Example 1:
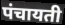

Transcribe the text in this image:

पंचायती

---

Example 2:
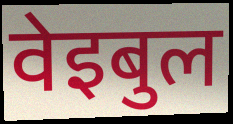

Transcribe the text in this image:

वेइबुल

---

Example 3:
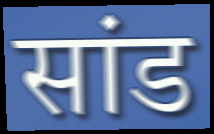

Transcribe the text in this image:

सांड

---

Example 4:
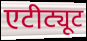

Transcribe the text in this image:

एटीट्यूट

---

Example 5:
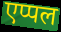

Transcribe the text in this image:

एप्पल